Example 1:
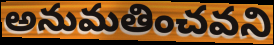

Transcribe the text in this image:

అనుమతించవని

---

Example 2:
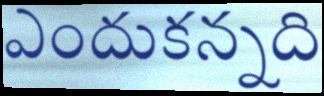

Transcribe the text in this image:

ఎందుకన్నది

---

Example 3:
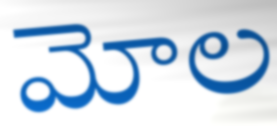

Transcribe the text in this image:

మోల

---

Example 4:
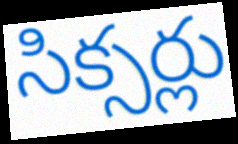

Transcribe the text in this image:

సిక్సర్లు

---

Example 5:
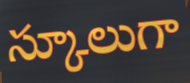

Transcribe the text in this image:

స్కూలుగా